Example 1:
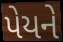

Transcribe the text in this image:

પેયને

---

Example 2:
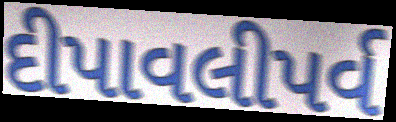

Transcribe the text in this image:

દીપાવલીપર્વ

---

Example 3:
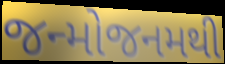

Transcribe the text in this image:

જન્મોજનમથી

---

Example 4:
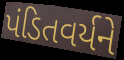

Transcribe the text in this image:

પંડિતવર્યને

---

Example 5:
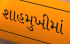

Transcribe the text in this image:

શાહમુખીમાં